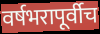
वर्षभरापूर्वीच